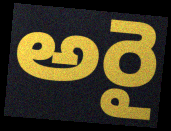
అరై